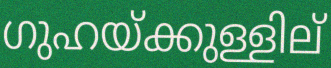
ഗുഹയ്ക്കുള്ളില്